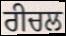
ਰੀਚਲ